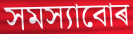
সমস্যাবোৰ